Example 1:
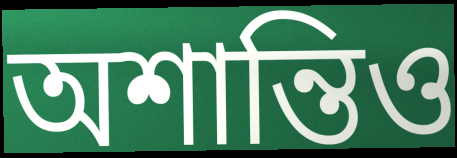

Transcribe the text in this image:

অশান্তিও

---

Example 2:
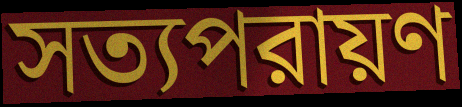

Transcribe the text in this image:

সত্যপরায়ণ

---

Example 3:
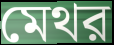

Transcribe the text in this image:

মেথর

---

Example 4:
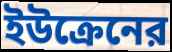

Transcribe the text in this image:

ইউক্রেনের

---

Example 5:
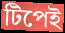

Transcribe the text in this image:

টিপেই